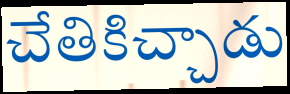
చేతికిచ్చాడు